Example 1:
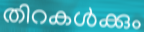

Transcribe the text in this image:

തിറകൾക്കും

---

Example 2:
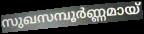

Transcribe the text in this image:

സുഖസമ്പൂർണ്ണമായ്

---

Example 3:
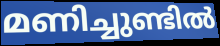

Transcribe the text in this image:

മണിച്ചുണ്ടിൽ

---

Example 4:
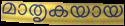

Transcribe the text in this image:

മാതൃകയായ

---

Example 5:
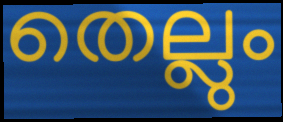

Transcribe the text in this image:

തെല്ലും